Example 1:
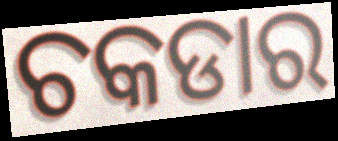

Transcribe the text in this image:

ଚକଡାର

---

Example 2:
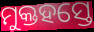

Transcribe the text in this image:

ମୁକ୍ତହସ୍ତେ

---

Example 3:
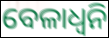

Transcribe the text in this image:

ବେଳାଧ୍ୱନି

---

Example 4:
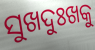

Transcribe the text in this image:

ସୁଖଦୁଃଖକୁ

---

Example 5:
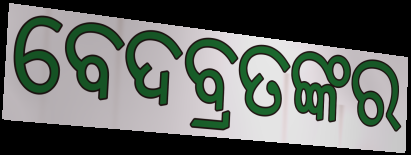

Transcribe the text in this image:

ବେଦବ୍ରତଙ୍କର